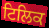
ਟਿਲਿਕ